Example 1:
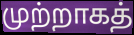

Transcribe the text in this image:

முற்றாகத்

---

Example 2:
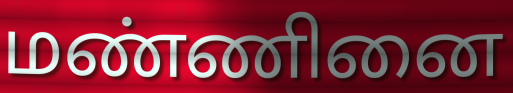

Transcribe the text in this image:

மண்ணினை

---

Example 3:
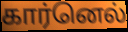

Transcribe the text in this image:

கார்னெல்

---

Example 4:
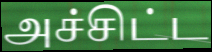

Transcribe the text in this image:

அச்சிட்ட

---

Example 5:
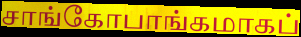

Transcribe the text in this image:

சாங்கோபாங்கமாகப்